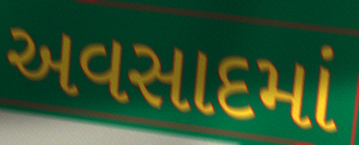
અવસાદમાં